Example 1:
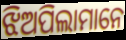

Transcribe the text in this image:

ଝିଅପିଲାମାନେ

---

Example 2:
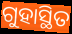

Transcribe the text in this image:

ଗୁହାସ୍ଥିତ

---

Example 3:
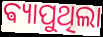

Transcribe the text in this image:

ଵ୍ୟାପୁଥିଲା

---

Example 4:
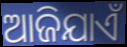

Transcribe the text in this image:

ଆଜିଯାଏଁ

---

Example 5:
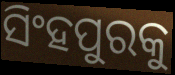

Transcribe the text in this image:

ସିଂହପୁରକୁ